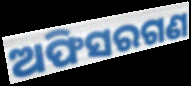
ଅଫିସରଗଣ